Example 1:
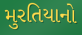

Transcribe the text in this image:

મુરતિયાનો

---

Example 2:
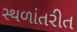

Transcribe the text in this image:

સ્થળાંતરીત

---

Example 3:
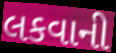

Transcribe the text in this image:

લકવાની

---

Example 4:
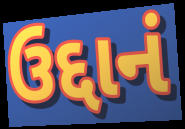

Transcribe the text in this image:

ઉદ્દાનં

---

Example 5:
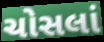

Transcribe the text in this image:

ચોસલાં